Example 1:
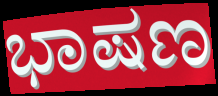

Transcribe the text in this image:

ಭಾಷಣ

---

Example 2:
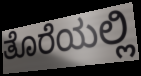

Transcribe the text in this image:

ತೊರೆಯಲ್ಲಿ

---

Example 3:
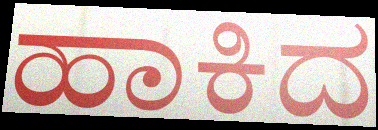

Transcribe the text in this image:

ಹಾಕಿದ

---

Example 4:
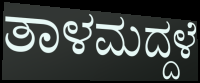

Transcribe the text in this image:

ತಾಳಮದ್ದಳೆ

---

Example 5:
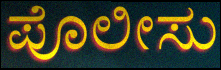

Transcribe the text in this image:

ಪೊಲೀಸು